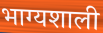
भाग्यशाली